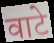
वाटे